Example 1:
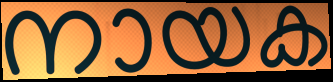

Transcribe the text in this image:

നായക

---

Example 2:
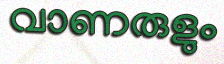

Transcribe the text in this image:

വാണരുളും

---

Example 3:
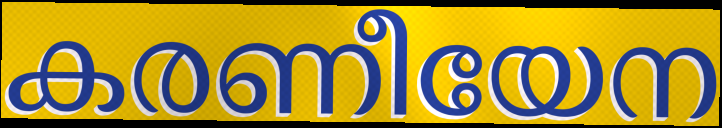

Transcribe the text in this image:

കരണീയേന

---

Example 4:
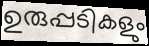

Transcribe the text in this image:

ഉരുപ്പടികളും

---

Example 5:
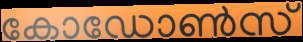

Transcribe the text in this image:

കോഡോൺസ്